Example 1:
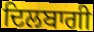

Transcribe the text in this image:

ਦਿਲਬਾਗੀ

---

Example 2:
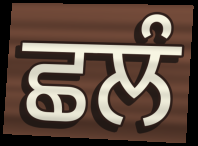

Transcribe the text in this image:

ਛਲੰ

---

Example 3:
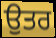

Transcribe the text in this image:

ਉਤਰ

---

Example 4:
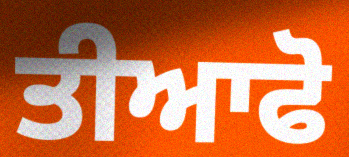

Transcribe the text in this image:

ਤੀਆਫੋ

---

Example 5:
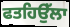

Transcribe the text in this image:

ਫਤਹਿਉੱਲਾ